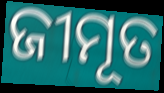
ଜୀମୂତ